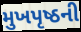
મુખપૃષ્ઠની